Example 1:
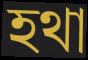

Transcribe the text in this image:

হথা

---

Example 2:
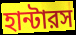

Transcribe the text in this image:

হান্টারস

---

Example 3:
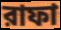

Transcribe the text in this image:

রাফা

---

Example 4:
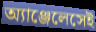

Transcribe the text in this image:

অ্যাঞ্জেলেসেই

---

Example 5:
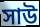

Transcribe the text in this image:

সাউ